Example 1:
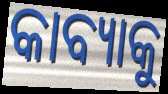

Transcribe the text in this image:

କାବ୍ୟାକୁ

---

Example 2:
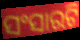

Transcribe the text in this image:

ସଂସାରଟି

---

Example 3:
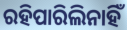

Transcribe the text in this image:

ରହିପାରିଲିନାହିଁ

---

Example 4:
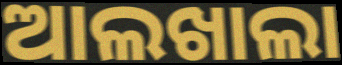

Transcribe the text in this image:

ଆଲଖାଲା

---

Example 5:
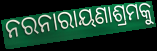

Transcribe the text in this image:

ନରନାରାୟଣାଶ୍ରମକୁ